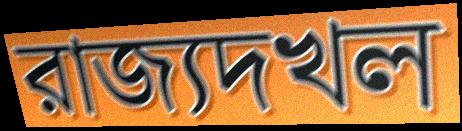
রাজ্যদখল